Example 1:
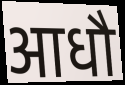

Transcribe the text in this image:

आधौ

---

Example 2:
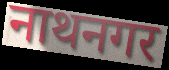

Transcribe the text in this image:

नाथनगर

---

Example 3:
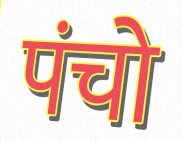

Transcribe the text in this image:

पंचो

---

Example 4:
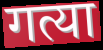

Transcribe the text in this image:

गत्या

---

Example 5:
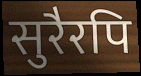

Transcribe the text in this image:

सुरैरपि